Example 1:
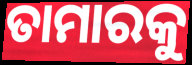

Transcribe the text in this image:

ତାମାରକୁ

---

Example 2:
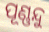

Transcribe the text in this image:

ପୂଣ୍ଣନ୍ଦୁ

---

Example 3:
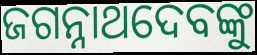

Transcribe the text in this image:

ଜଗନ୍ନାଥଦେବଙ୍କୁ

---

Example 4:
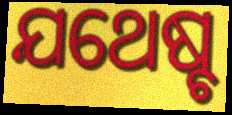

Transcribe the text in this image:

ଯଥେଷ୍ଚ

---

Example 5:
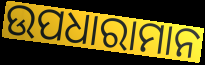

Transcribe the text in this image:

ଉପଧାରାମାନ